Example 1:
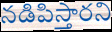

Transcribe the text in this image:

నడిపిస్తారని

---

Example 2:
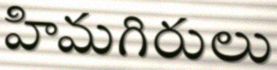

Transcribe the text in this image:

హిమగిరులు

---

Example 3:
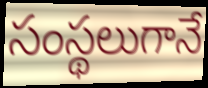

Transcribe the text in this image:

సంస్థలుగానే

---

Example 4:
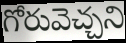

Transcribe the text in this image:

గోరువెచ్చని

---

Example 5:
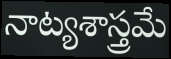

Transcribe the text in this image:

నాట్యశాస్త్రమే